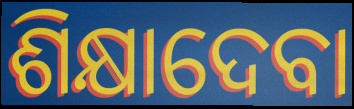
ଶିକ୍ଷାଦେବା